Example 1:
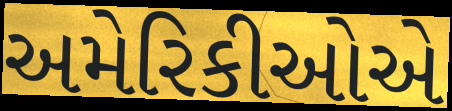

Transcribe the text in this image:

અમેરિકીઓએ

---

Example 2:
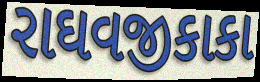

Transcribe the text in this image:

રાઘવજીકાકા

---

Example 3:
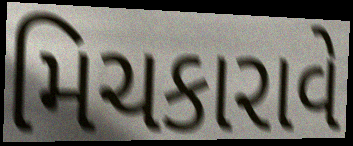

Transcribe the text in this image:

મિચકારાવે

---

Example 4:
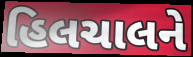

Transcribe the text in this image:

હિલચાલને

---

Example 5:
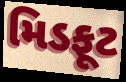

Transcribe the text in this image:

મિડફૂટ